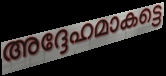
അദ്ദേഹമാകട്ടെ